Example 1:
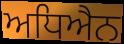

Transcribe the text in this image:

ਅਧਿਐਨ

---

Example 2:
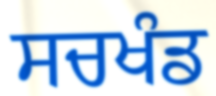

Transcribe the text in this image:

ਸਚਖੰਡ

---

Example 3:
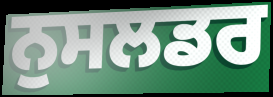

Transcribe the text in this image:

ਨੁਸਲਡਰ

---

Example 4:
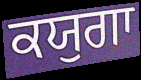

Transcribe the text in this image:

ਕਯੁਗਾ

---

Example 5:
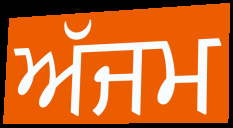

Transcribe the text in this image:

ਅੱਜਮ